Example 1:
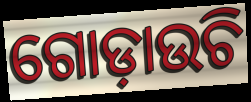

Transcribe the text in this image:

ଗୋଡ଼ାଉଚି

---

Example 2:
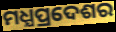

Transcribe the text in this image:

ମଧ୍ଯପ୍ରଦେଶର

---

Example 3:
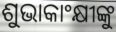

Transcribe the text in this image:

ଶୁଭାକାଂକ୍ଷୀଙ୍କୁ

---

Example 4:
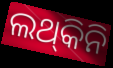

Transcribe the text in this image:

ଲଥ୍‍କିନି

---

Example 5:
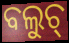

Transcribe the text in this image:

ବଲୁଚ୍